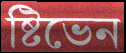
ষ্টিভেন